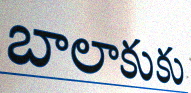
బాలాకుకు